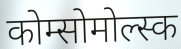
कोम्सोमोल्स्क